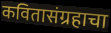
कवितासंग्रहाचा